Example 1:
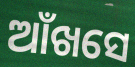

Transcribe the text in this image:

ଆଁଖସେ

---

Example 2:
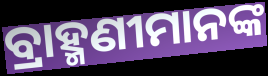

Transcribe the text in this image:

ବ୍ରାହ୍ମଣୀମାନଙ୍କ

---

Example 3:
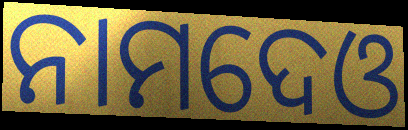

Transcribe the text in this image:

ନାମଦେଓ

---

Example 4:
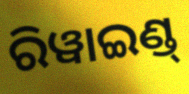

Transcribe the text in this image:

ରିୱାଇଣ୍ଡ୍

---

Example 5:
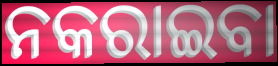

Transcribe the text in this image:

ନକରାଇବା